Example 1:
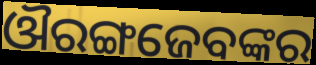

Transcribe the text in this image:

ଔରଙ୍ଗଜେବଙ୍କର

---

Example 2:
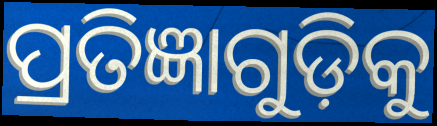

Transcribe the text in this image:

ପ୍ରତିଜ୍ଞାଗୁଡ଼ିକୁ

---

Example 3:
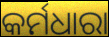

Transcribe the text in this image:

କର୍ମଧାରା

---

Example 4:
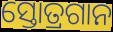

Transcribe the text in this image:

ସ୍ତୋତ୍ରଗାନ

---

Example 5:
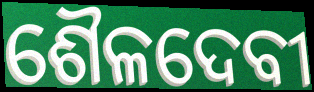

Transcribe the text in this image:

ଶୈଳଦେବୀ